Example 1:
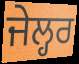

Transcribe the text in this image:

ਜੇਲ੍ਹਰ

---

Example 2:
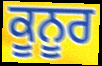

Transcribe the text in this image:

ਕੂਨੂਰ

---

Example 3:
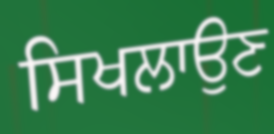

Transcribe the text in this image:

ਸਿਖਲਾਉਣ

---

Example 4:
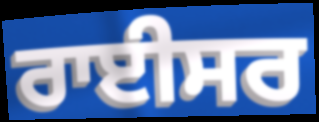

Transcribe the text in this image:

ਰਾਈਸਰ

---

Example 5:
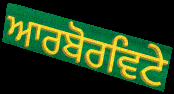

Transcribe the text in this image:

ਆਰਬੋਰਵਿਟੇ